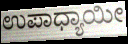
ಉಪಾಧ್ಯಾಯೀ